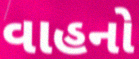
વાહનો